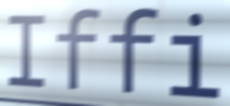
Iffi